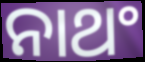
ନାଥଂ